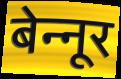
बेन्नूर